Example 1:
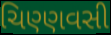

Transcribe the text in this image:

ચિણ્ણવસી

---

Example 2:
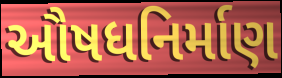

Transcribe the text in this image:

ઔષધનિર્માણ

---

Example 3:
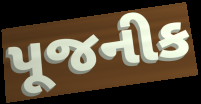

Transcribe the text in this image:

પૂજનીક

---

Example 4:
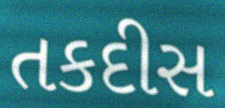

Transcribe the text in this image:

તકદીસ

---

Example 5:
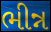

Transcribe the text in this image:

ભીન્ન